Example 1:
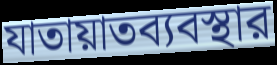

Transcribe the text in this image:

যাতায়াতব্যবস্থার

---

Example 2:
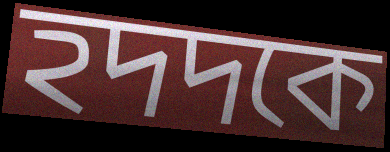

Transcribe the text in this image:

হদদকে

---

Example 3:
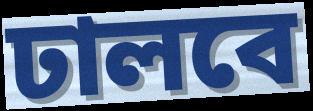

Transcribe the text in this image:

ঢালবে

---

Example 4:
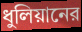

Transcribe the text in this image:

ধুলিয়ানের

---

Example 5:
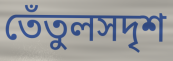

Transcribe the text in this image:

তেঁতুলসদৃশ